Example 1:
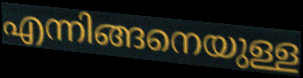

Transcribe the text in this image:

എന്നിങ്ങനെയുള്ള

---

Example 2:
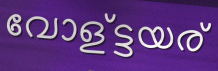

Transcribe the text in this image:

വോള്ട്ടയര്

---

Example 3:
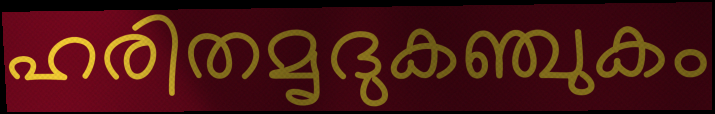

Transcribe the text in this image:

ഹരിതമൃദുകഞ്ചുകം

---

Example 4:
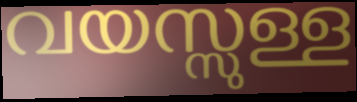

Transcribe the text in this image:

വയസ്സുള്ള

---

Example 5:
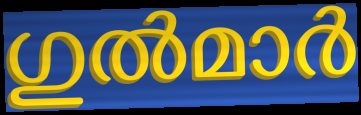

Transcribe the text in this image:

ഗുൽമാർ